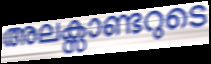
അലക്സാണ്ടറുടെ